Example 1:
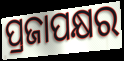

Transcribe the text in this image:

ପ୍ରଜାପକ୍ଷର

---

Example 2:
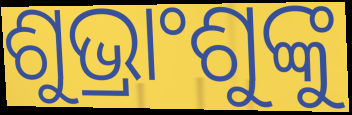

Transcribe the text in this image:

ଶୁଭ୍ରାଂଶୁଙ୍କୁ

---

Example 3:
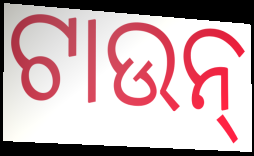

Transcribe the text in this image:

ଟାଉନ୍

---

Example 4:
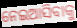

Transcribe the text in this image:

ନେଇଆସିବାକୁ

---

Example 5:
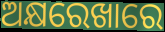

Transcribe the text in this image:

ଅକ୍ଷରେଖାରେ